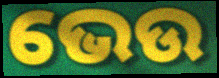
ଭେଉ